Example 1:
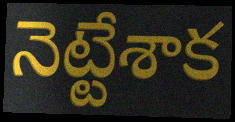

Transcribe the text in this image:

నెట్టేశాక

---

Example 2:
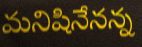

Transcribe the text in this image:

మనిషినేనన్న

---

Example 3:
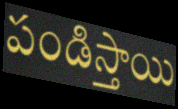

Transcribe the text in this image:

పండిస్తాయి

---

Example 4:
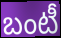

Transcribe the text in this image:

బంటీ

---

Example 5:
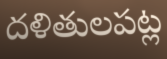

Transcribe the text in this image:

దళితులపట్ల